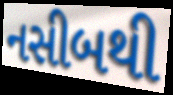
નસીબથી